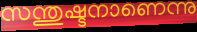
സന്തുഷ്ടനാണെന്നു